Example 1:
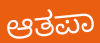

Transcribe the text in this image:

ಆತಪಾ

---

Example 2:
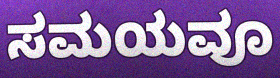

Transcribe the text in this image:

ಸಮಯವೂ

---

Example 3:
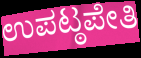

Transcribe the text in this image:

ಉಪಟ್ಠಪೇತಿ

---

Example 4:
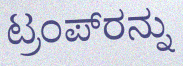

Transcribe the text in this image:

ಟ್ರಂಪ್‌ರನ್ನು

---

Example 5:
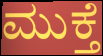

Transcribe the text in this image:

ಮುಕ್ತೆ